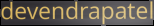
devendrapatel